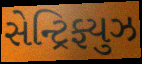
સેન્ટ્રિફ્યુઝ